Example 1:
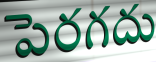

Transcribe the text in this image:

పెరగదు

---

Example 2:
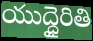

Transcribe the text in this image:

యుద్ధైరితి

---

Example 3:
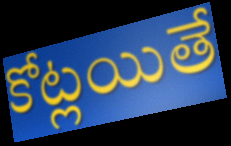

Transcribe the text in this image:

కోట్లయితే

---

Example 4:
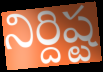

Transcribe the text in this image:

నిర్దిష్ట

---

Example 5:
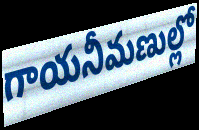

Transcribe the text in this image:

గాయనీమణుల్లో